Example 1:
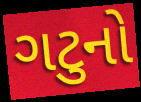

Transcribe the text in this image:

ગટુનો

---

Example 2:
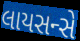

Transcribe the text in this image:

લાયસન્સે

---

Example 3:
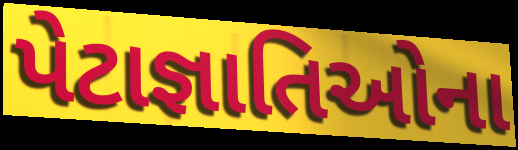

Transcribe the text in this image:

પેટાજ્ઞાતિઓના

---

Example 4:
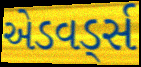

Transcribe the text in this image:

એડવર્ડ્સ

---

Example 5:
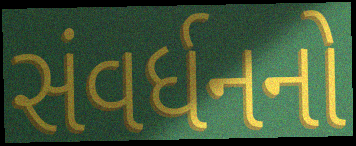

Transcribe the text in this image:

સંવર્ધનનો